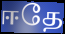
ஈதே